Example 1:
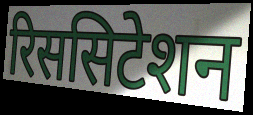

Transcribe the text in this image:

रिससिटेशन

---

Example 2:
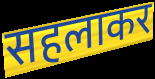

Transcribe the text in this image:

सहलाकर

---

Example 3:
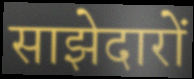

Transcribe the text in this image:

साझेदारों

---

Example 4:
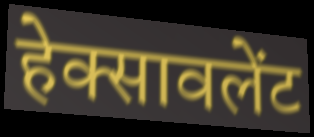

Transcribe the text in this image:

हेक्सावलेंट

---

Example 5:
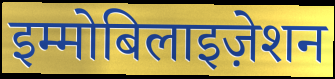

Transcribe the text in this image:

इम्मोबिलाइज़ेशन